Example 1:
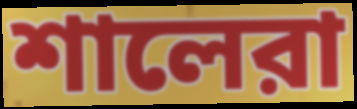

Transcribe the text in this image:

শালেরা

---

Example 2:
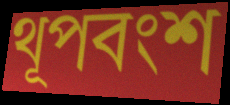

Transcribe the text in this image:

থূপবংশ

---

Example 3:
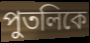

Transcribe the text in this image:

পুতলিকে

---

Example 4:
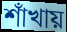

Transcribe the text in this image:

শাঁখায়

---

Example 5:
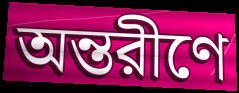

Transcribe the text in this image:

অন্তরীণে